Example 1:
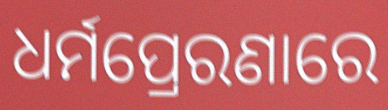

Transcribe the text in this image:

ଧର୍ମପ୍ରେରଣାରେ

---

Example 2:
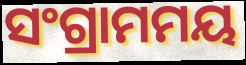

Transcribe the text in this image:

ସଂଗ୍ରାମମୟ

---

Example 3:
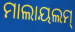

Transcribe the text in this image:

ମାଲାୟଲମ୍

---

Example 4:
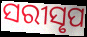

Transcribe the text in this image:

ସରୀସୃପ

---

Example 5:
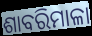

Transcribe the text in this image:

ଶାବରିମାଳା